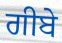
ਗੀਬੇ